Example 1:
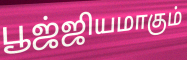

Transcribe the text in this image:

பூஜ்ஜியமாகும்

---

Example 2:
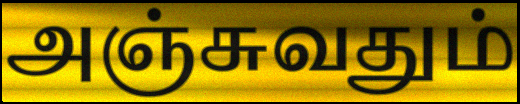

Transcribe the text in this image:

அஞ்சுவதும்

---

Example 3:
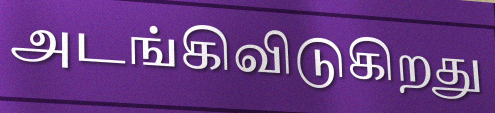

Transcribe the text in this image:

அடங்கிவிடுகிறது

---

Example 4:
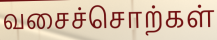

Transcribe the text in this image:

வசைச்சொற்கள்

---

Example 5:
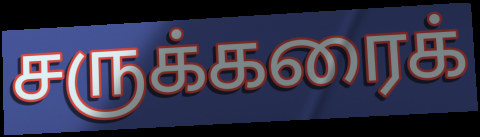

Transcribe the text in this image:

சருக்கரைக்